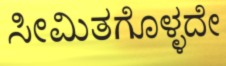
ಸೀಮಿತಗೊಳ್ಳದೇ